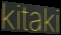
kitaki